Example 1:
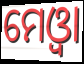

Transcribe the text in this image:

ମେଓ୍ୱା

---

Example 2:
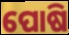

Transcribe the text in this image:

ପୋଷି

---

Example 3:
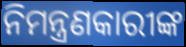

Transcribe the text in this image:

ନିମନ୍ତ୍ରଣକାରୀଙ୍କ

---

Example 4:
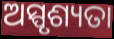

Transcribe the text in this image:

ଅସ୍ପୃଶ୍ୟତା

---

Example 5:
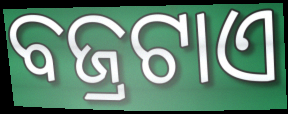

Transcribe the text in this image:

ବଜ୍ରଟାଏ